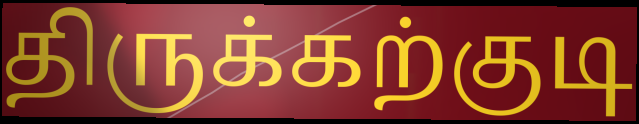
திருக்கற்குடி